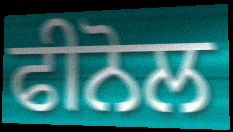
ਫੀਨੋਲ